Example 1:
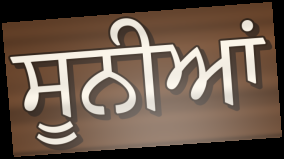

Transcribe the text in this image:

ਸੂਨੀਆਂ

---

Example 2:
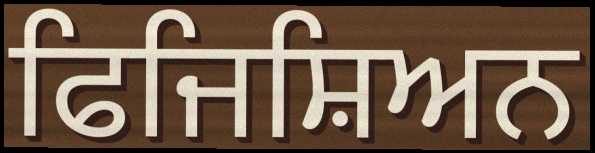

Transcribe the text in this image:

ਫਿਜਿਸ਼ਿਅਨ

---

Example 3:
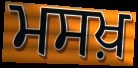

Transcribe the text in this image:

ਮਸਖ਼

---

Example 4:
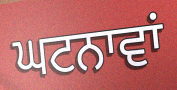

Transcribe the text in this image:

ਘਟਨਾਵਾਂ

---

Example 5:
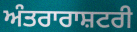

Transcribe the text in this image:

ਅੰਤਰਾਰਾਸ਼ਟਰੀ